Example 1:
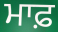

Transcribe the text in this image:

ਮਾਫ਼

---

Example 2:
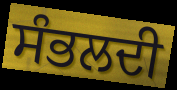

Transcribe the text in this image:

ਸੰਭਲਦੀ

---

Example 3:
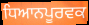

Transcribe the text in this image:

ਧਿਆਨਪੂਰਵਕ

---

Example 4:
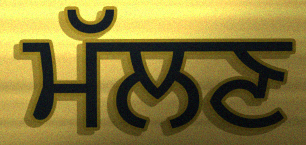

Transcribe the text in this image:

ਮੱਲਣ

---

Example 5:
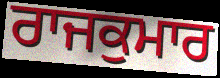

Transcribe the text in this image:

ਰਾਜਕੁਮਾਰ